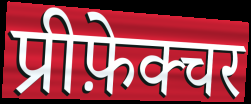
प्रीफ़ेक्चर